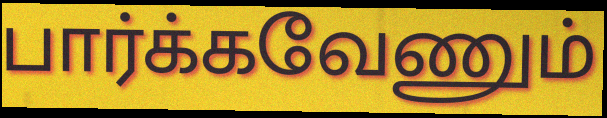
பார்க்கவேணும்